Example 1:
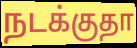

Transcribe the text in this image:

நடக்குதா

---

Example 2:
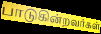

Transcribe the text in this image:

பாடுகின்றவர்கள்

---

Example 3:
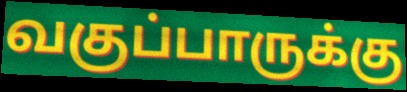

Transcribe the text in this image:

வகுப்பாருக்கு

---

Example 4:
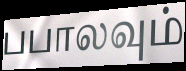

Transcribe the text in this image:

பபாலவும்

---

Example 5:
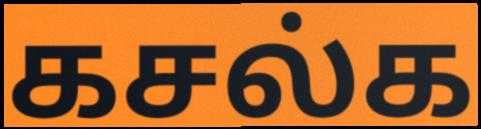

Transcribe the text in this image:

கசல்க